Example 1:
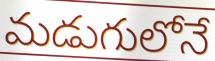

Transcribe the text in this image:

మడుగులోనే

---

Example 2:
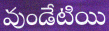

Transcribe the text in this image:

వుండేటియి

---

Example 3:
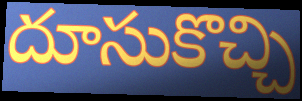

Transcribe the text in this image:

దూసుకొచ్చి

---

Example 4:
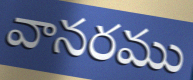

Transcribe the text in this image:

వానరము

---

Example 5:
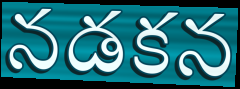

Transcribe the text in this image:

నడకన